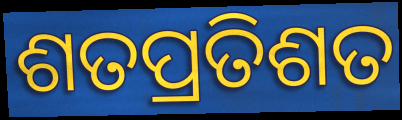
ଶତପ୍ରତିଶତ